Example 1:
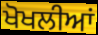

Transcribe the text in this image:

ਖੋਖਲੀਆਂ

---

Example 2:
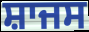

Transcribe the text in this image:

ਸ਼ਾਜਸ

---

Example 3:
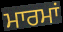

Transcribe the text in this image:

ਮਾਰਮਾਂ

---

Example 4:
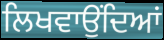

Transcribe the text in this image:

ਲਿਖਵਾਉਂਦਿਆਂ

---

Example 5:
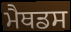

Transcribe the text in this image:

ਮੈਥਡਸ